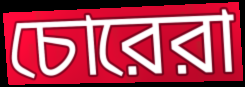
চোরেরা